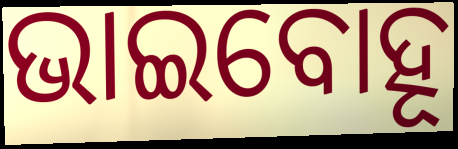
ଭାଇବୋହୂ